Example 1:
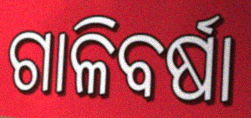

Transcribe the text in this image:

ଗାଳିବର୍ଷା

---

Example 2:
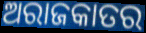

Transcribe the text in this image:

ଅରାଜକାତର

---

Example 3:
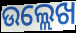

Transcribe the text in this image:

ଉଲ୍ଲେଖ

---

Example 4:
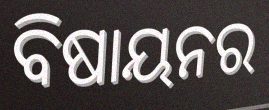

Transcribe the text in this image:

ବିଷାୟନର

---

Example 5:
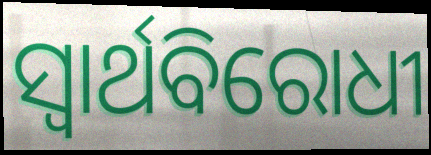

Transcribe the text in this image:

ସ୍ବାର୍ଥବିରୋଧୀ